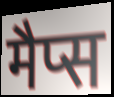
मैप्स